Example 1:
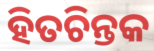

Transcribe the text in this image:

ହିତଚିନ୍ତକ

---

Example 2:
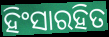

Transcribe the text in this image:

ହିଂସାରହିତ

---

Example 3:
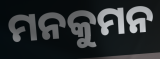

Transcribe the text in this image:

ମନକୁମନ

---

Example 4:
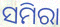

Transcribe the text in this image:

ସମିରା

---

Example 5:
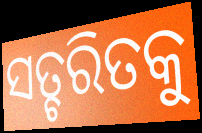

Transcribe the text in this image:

ସତ୍ଚରିତକୁ